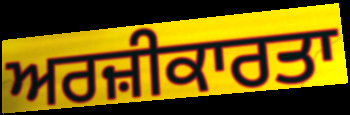
ਅਰਜ਼ੀਕਾਰਤਾ